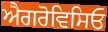
ਐਗਰੋਵਿਸਿਓ